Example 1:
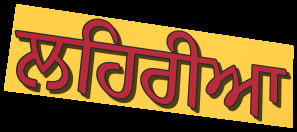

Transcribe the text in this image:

ਲਹਿਰੀਆ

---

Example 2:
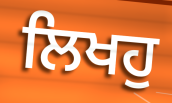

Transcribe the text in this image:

ਲਿਖਹੁ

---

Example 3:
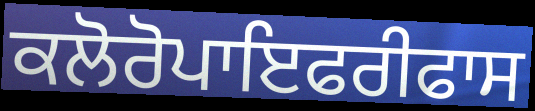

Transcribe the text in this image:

ਕਲੋਰੋਪਾਇਫਰੀਫਾਸ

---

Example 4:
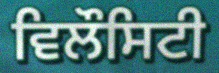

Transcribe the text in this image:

ਵਿਲੌਸਿਟੀ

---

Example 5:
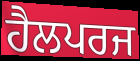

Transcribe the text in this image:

ਹੈਲਪਰਜ